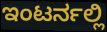
ಇಂಟರ್ನಲ್ಲಿ